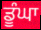
ਡੂੰਘਾ